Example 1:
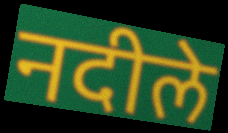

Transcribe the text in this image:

नदीले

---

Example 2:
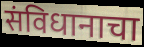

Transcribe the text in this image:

संविधानाचा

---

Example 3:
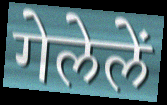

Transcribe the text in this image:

गेलेलें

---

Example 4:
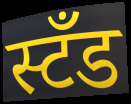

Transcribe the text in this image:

स्टँड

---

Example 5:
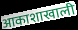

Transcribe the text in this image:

आकाशाखाली